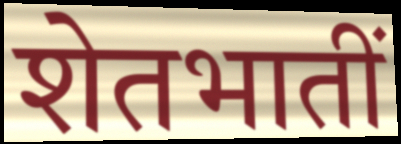
शेतभातीं